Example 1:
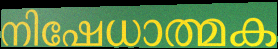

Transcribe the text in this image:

നിഷേധാത്മക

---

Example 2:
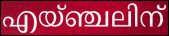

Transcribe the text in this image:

എയ്ഞ്ചലിന്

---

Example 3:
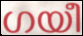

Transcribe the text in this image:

ഗയീ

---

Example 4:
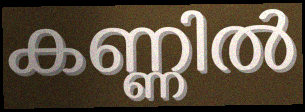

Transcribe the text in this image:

കണ്ണിൽ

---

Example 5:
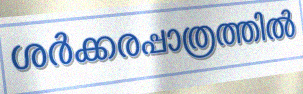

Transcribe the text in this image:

ശർക്കരപ്പാത്രത്തിൽ